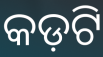
କଡ଼ଟି